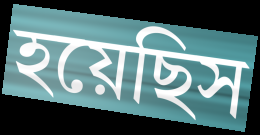
হয়েছিস